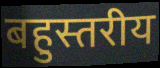
बहुस्तरीय